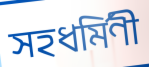
সহধৰ্মিণী